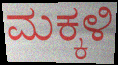
ಮಕ್ಕಳಿ